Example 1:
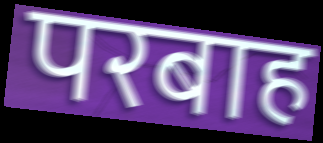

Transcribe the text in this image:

परबाह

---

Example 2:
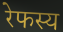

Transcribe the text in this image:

रेफस्य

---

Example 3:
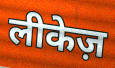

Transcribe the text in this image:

लीकेज़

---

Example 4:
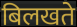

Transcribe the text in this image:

बिलखते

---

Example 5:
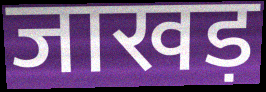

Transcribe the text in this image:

जाखड़